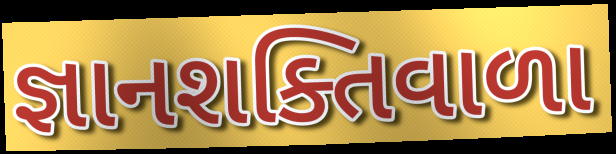
જ્ઞાનશક્તિવાળા